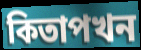
কিতাপখন